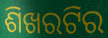
ଶିଖରଟିର